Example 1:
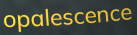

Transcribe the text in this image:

opalescence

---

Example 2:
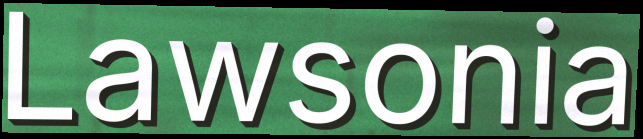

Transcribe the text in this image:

Lawsonia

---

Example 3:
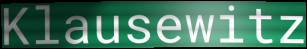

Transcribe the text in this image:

Klausewitz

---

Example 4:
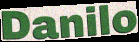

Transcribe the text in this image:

Danilo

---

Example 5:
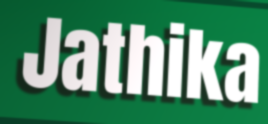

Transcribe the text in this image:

Jathika